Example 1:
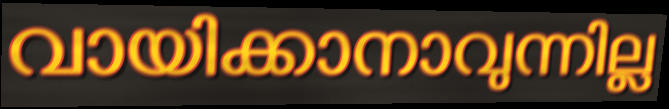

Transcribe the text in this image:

വായിക്കാനാവുന്നില്ല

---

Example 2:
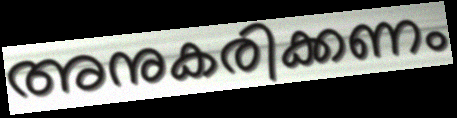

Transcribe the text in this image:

അനുകരിക്കണം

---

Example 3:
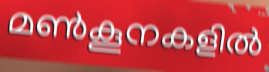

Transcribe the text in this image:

മൺകൂനകളിൽ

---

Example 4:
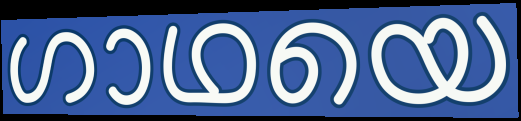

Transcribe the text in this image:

ഗാഥയെ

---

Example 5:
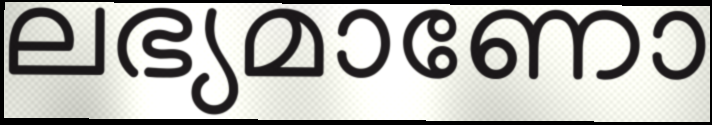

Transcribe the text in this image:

ലഭ്യമാണോ